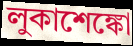
লুকাশেঙ্কো